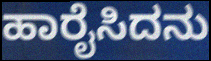
ಹಾರೈಸಿದನು